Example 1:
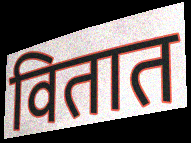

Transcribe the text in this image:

वितात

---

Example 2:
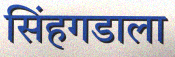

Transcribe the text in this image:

सिंहगडाला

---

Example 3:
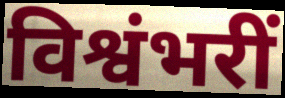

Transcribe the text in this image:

विश्वंभरीं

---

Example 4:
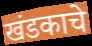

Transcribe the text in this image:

खंडकाचे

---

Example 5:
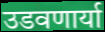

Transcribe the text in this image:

उडवणार्या